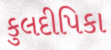
કુલદીપિકા